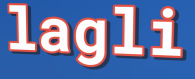
lagli